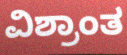
ವಿಶ್ರಾಂತ